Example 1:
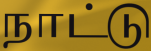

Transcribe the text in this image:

நாட்டு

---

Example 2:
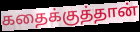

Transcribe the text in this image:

கதைக்குத்தான்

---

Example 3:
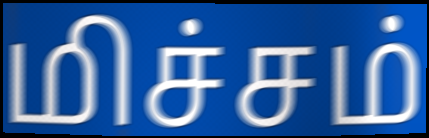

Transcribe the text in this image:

மிச்சம்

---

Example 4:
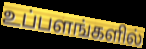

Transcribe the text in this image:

உப்பளங்களில்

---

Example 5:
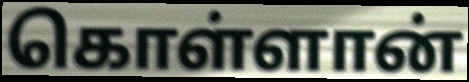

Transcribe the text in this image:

கொள்ளான்